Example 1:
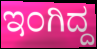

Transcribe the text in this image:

ಇಂಗಿದ್ದ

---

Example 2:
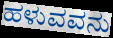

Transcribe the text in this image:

ಹಳುವವನು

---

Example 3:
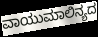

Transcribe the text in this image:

ವಾಯುಮಾಲಿನ್ಯದ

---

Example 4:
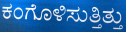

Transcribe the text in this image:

ಕಂಗೊಳಿಸುತ್ತಿತ್ತು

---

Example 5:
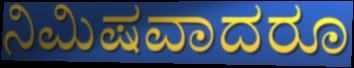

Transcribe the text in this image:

ನಿಮಿಷವಾದರೂ